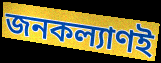
জনকল্যাণই